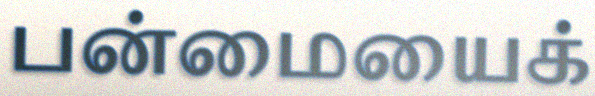
பன்மையைக்